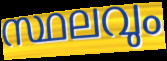
സ്ഥലവും